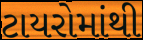
ટાયરોમાંથી